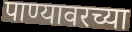
पाण्यावरच्या